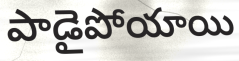
పాడైపోయాయి